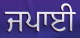
ਜਪਾਈ